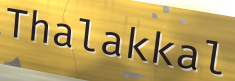
Thalakkal